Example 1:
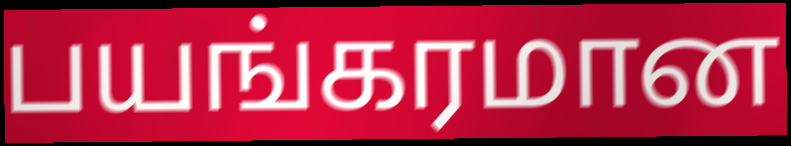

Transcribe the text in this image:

பயங்கரமான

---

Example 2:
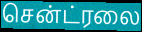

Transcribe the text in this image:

சென்ட்ரலை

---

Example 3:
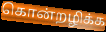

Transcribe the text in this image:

கொன்றழிக்க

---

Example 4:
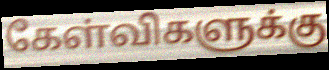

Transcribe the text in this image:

கேள்விகளுக்கு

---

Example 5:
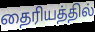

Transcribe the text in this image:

தைரியத்தில்